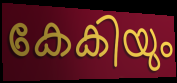
കേകിയും